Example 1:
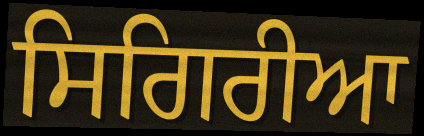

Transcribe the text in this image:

ਸਿਗਿਰੀਆ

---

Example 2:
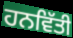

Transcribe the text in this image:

ਹਨਵਿੱਤੀ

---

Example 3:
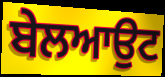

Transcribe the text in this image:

ਬੇਲਆਉਟ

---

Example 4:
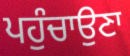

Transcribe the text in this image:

ਪਹੁੰਚਾਉਣਾ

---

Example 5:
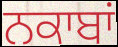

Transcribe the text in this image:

ਨਕਾਬਾਂ